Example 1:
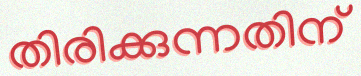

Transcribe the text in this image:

തിരിക്കുന്നതിന്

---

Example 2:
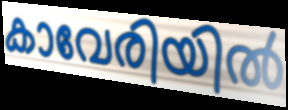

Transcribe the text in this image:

കാവേരിയിൽ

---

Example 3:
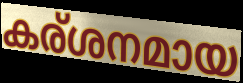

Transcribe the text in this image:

കര്ശനമായ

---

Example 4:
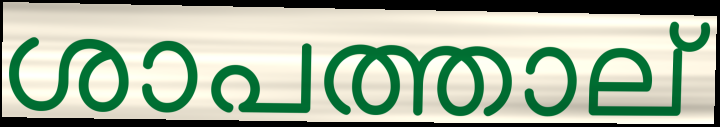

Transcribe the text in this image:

ശാപത്താല്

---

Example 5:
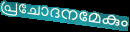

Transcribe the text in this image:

പ്രചോദനമേകും